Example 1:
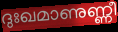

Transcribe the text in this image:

ദുഃഖമാണുണ്ണീ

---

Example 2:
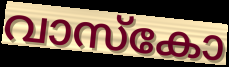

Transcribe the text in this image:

വാസ്കോ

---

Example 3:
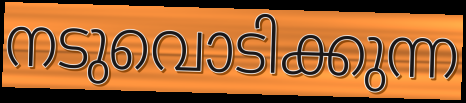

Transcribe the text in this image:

നടുവൊടിക്കുന്ന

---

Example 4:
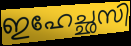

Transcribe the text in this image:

ഇഹേച്ഛസി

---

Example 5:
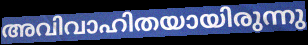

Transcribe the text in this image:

അവിവാഹിതയായിരുന്നു